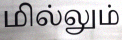
மில்லும்